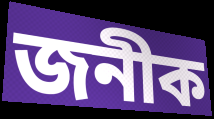
জনীক